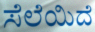
ಸೆಲೆಯಿದೆ